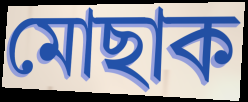
মোছাক